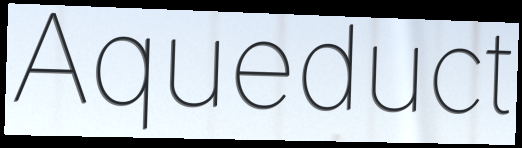
Aqueduct